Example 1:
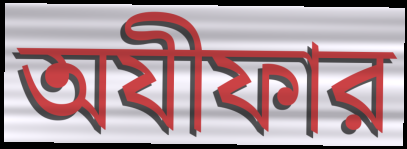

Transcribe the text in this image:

অযীফার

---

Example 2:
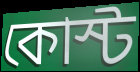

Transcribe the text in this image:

কোস্ট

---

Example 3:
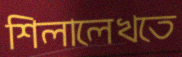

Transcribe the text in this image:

শিলালেখতে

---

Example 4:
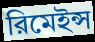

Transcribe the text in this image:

রিমেইন্স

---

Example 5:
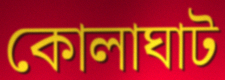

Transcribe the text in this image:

কোলাঘাট